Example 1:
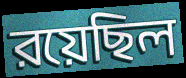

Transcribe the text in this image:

রয়েছিল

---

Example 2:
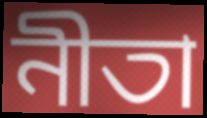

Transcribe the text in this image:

নীতা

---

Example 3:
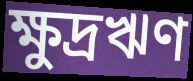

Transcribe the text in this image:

ক্ষুদ্রঋণ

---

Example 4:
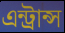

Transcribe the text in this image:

এন্ট্রান্স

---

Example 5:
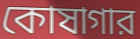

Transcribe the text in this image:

কোষাগার